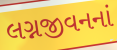
લગ્નજીવનનાં